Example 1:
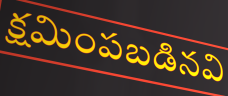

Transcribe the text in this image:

క్షమింపబడినవి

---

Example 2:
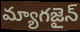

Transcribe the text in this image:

మ్యాగజైన్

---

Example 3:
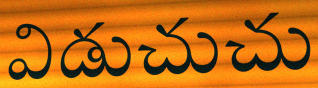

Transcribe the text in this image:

విడుచుచు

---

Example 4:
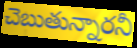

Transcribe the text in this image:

చెబుతున్నారనీ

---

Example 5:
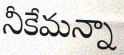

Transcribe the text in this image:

నీకేమన్నా